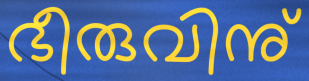
ഭീരുവിനു്